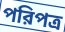
পরিপত্র